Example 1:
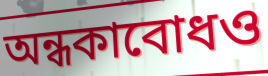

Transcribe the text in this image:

অন্ধকাবোধও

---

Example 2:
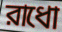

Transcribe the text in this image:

রাধো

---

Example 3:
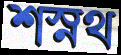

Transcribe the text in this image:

শস্নথ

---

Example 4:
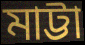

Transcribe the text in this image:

মাট্টা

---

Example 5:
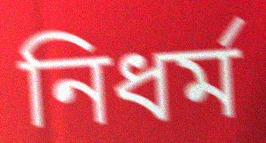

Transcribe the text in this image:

নিধর্ম